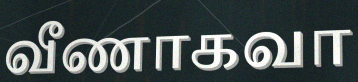
வீணாகவா